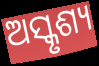
ଅସ୍କୃଶ୍ୟ